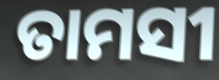
ତାମସୀ